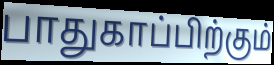
பாதுகாப்பிற்கும்